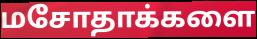
மசோதாக்களை